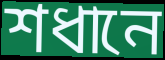
শধানে